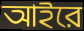
আইরে